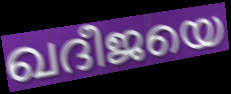
ഖദീജയെ